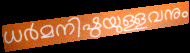
ധർമനിഷ്ഠയുള്ളവനും